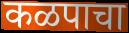
कळपाचा